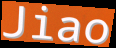
Jiao